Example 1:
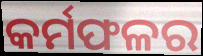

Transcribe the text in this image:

କର୍ମଫଳର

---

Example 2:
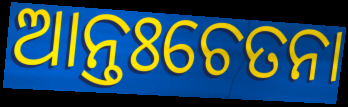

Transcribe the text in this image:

ଆନ୍ତଃଚେତନା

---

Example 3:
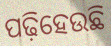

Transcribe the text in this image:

ପଢ଼ିହେଉଛି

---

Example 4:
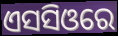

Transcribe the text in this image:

ଏସସିଓରେ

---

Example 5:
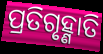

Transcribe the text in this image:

ପ୍ରତିଗୃହ୍ଣାତି